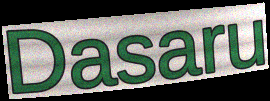
Dasaru